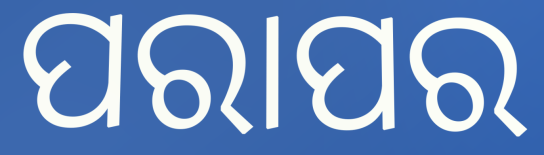
ପରାପର